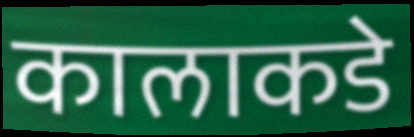
कालाकडे